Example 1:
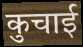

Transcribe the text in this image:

कुचाई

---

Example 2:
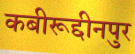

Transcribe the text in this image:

कबीरूद्दीनपुर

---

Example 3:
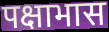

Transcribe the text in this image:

पक्षाभास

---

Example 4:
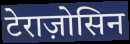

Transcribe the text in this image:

टेराज़ोसिन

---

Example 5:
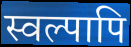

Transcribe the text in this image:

स्वल्पापि